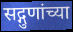
सद्गुणांच्या